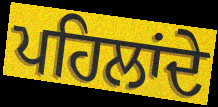
ਪਹਿਲਾਂਦੇ